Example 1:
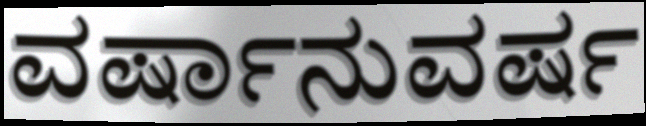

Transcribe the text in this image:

ವರ್ಷಾನುವರ್ಷ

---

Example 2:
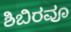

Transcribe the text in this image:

ಶಿಬಿರವೂ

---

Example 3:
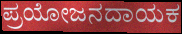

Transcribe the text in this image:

ಪ್ರಯೋಜನದಾಯಕ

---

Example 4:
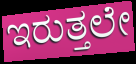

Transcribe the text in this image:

ಇರುತ್ತಲೇ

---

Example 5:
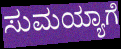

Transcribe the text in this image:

ಸುಮಯ್ಯಾಗೆ